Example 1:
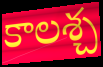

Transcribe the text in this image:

కాలశ్చ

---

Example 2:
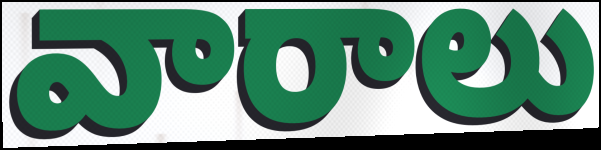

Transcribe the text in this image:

వారాలు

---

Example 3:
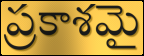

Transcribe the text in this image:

ప్రకాశమై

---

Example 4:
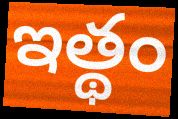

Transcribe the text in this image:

ఇత్థం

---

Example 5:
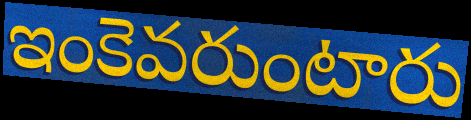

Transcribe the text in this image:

ఇంకెవరుంటారు